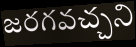
జరగవచ్చని